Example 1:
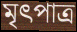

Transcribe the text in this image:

মৃৎপাত্র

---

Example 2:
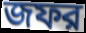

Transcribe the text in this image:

জফর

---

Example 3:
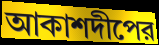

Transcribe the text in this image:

আকাশদীপের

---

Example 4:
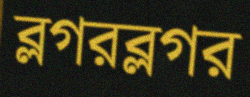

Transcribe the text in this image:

ব্লগরব্লগর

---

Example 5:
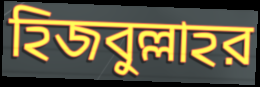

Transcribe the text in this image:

হিজবুল্লাহর